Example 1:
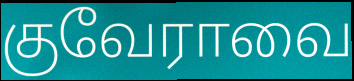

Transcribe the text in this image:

குவேராவை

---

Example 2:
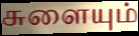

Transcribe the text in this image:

சுளையும்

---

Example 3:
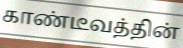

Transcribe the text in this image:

காண்டீவத்தின்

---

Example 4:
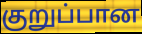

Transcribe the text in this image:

குறுப்பான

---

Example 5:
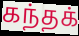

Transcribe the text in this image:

கந்தக்